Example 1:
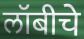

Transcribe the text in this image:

लॉबीचे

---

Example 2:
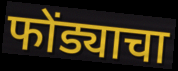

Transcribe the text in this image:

फोंड्याचा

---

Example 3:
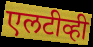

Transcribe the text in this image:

एलटीव्ही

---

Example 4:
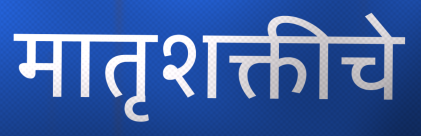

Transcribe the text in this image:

मातृशक्तीचे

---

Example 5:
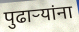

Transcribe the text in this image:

पुढाऱ्यांना